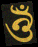
ঔঁ